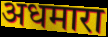
अधमारा